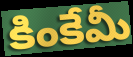
కింకేమీ